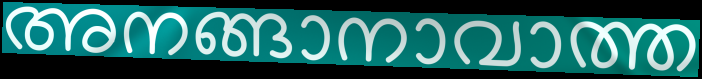
അനങ്ങാനാവാത്ത